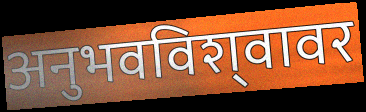
अनुभवविश्वावर